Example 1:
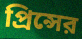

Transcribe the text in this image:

প্রিন্সের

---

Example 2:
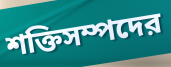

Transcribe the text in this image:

শক্তিসম্পদের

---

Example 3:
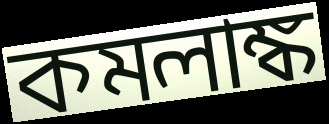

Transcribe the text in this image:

কমলাঙ্ক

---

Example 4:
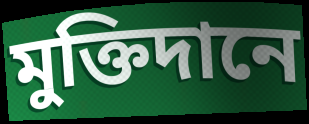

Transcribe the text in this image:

মুক্তিদানে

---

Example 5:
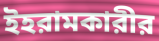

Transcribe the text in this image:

ইহরামকারীর